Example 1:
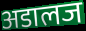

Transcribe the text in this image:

अडालज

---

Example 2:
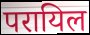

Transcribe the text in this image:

परायिल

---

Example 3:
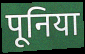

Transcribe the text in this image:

पूनिया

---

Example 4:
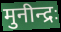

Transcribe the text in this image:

मुनीन्द्रः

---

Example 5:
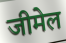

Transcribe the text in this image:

जीमेल